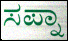
ಸಪ್ನಾ